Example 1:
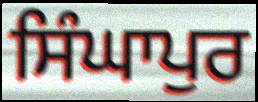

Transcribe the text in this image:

ਸਿੰਘਾਪੁਰ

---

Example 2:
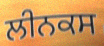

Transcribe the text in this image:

ਲੀਨਕਸ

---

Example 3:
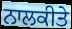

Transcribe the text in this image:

ਨਾਲਕੀਤੇ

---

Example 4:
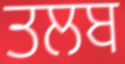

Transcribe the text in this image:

ਤਲਬ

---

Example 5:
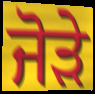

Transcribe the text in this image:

ਜੋੜੇ